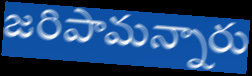
జరిపామన్నారు